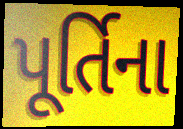
પૂર્તિના